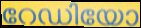
റേഡിയോ